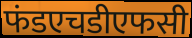
फंडएचडीएफसी